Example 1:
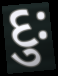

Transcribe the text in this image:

દુઃ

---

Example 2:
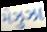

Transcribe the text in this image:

મેઝુઝા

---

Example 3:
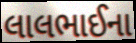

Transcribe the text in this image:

લાલભાઈના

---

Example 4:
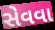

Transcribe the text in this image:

સેવવા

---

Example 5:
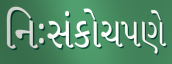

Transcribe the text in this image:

નિઃસંકોચપણે